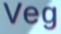
Veg